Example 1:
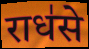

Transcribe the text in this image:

राध॑से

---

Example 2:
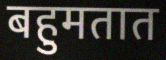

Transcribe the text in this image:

बहुमतात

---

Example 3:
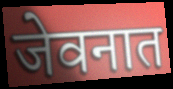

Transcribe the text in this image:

जेवनात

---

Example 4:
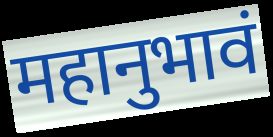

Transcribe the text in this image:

महानुभावं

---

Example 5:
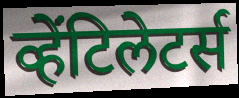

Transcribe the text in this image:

व्हेंटिलेटर्स